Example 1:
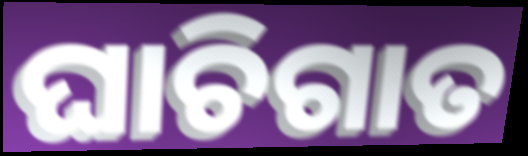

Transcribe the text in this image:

ଘାଚିଗାତ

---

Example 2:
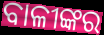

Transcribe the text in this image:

ବାଳୀଙ୍କର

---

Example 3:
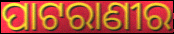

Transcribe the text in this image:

ପାଟରାଣୀର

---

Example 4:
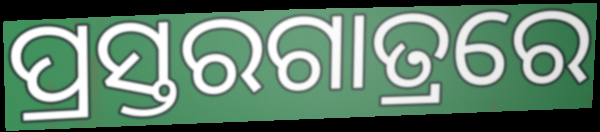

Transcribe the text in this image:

ପ୍ରସ୍ତରଗାତ୍ରରେ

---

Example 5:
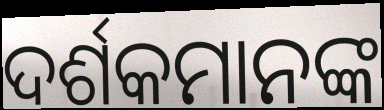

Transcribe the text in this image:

ଦର୍ଶକମାନଙ୍କ